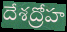
దేశద్రోహ